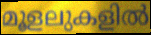
മൂളലുകളിൽ